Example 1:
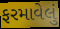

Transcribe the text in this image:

ફરમાવેલું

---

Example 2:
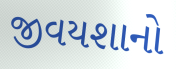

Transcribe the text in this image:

જીવયશાનો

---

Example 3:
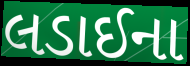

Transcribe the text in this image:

લડાઈના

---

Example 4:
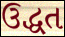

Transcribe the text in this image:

ઉદ્ધત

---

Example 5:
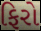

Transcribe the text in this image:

ફિરો